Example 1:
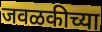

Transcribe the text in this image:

जवळकीच्या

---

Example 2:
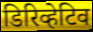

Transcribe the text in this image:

डिरिव्हेटिव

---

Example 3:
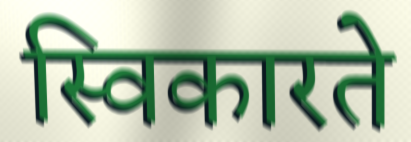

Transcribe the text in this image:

स्विकारते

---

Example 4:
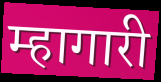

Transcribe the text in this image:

म्हागारी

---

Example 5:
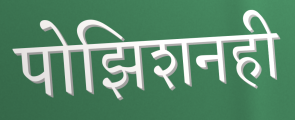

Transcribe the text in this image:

पोझिशनही